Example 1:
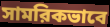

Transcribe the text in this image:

সামরিকভাবে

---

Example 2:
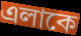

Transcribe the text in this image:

এলাকে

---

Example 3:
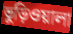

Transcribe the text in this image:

ভুড়িওয়ালা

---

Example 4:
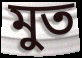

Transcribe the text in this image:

মুত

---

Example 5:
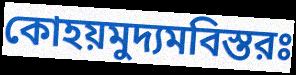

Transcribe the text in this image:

কোহয়মুদ্যমবিস্তরঃ